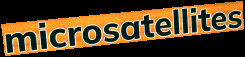
microsatellites